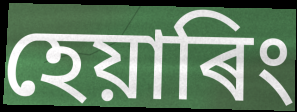
হেয়াৰিং